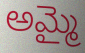
అమ్మై